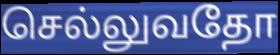
செல்லுவதோ